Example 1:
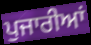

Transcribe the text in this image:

ਪੁਜਾਰੀਆਂ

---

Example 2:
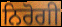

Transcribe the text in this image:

ਨਿਰੋਗੀ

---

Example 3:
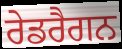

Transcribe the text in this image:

ਰੇਡਰੈਗਨ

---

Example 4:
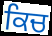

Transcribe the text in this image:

ਕਿਚ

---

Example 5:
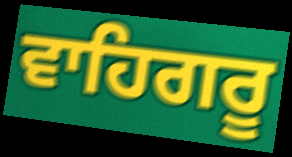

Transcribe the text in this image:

ਵਾਹਿਗਰੂ